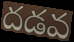
దడవ